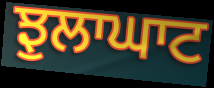
ਝੁਲਾਘਾਟ